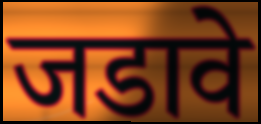
जडावे